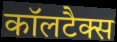
कॉलटैक्स